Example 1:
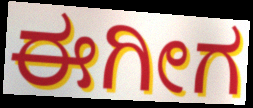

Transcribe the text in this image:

ಈಗೀಗ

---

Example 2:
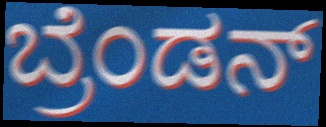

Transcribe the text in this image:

ಬ್ರೆಂಡನ್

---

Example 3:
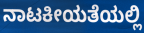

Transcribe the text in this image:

ನಾಟಕೀಯತೆಯಲ್ಲಿ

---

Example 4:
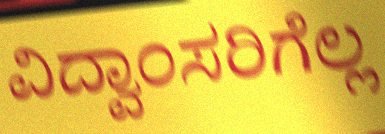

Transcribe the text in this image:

ವಿದ್ವಾಂಸರಿಗೆಲ್ಲ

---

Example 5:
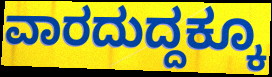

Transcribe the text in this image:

ವಾರದುದ್ದಕ್ಕೂ